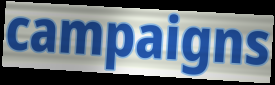
campaigns